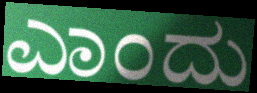
ಎಾಂದು